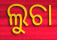
ଲୁଚା